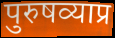
पुरुषव्याप्र